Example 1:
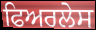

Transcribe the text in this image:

ਫਿਅਰਲੇਸ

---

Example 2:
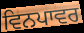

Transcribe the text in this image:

ਵਿਨਪਾਵਰ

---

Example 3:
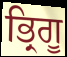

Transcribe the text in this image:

ਭ੍ਰਿਗੂ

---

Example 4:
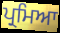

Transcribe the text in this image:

ਪ੍ਰਮਿਆ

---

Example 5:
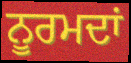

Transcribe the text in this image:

ਨੂਰਮਦਾਂ